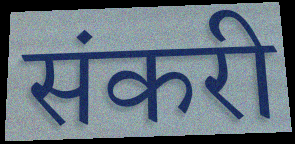
संकरी